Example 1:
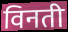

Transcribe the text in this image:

विनती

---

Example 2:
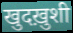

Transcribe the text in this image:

खुदख़ुशी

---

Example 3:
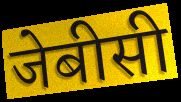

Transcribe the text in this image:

जेबीसी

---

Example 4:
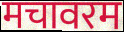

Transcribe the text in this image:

मचावरम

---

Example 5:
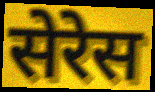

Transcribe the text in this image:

सेरेस